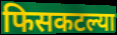
फिसकटल्या